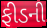
ફીડની